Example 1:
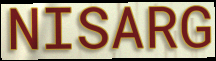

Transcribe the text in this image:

NISARG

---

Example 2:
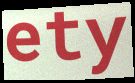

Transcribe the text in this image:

ety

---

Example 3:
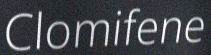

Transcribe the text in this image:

Clomifene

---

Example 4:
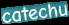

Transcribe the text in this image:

catechu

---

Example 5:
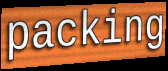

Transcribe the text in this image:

packing